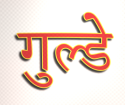
गुल्डे